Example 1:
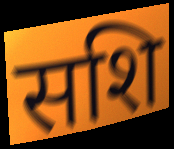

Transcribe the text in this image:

सशि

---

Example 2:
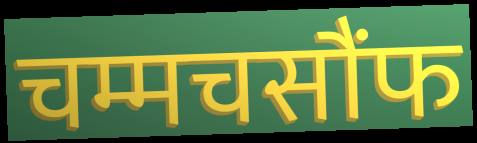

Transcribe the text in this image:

चम्मचसौंफ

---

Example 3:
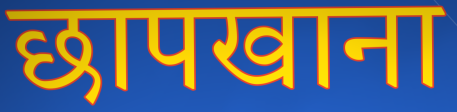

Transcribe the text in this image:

छापखाना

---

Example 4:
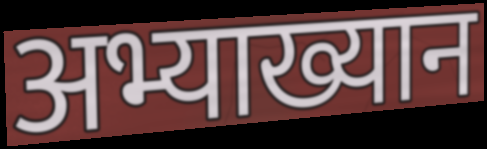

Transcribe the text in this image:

अभ्याख्यान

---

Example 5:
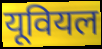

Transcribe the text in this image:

यूवियल